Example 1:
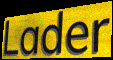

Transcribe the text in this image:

Lader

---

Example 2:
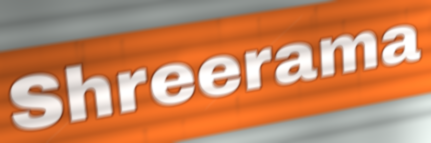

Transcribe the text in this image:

Shreerama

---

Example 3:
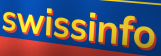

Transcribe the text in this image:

swissinfo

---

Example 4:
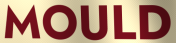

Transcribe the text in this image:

MOULD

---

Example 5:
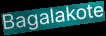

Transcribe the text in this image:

Bagalakote